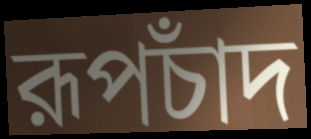
রূপচাঁদ